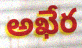
అఖేర